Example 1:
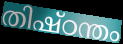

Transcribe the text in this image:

തിഷ്ഠന്തം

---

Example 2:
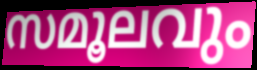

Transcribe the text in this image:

സമൂലവും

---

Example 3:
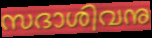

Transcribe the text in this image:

സദാശിവനു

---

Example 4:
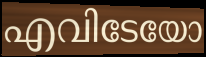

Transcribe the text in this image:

എവിടേയോ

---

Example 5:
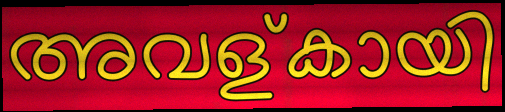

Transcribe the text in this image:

അവള്കായി